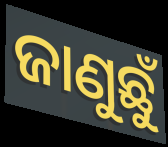
ଜାଣୁଛୁଁ